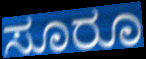
ಸೂರೂ